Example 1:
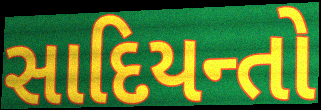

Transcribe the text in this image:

સાદિયન્તો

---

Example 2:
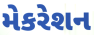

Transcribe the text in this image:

મેકરેશન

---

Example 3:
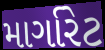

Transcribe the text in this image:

માર્ગારેટ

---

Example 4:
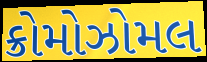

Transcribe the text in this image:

ક્રોમોઝોમલ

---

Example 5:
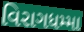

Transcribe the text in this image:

વિરાગધમ્મા